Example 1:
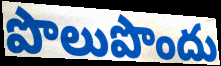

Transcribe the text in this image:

పొలుపొందు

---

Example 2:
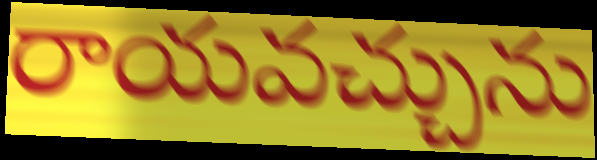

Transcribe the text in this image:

రాయవచ్చును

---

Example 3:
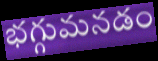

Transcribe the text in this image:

భగ్గుమనడం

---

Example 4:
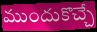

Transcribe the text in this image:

ముందుకొచ్చే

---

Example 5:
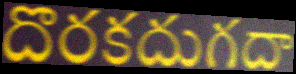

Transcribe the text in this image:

దొరకదుగదా